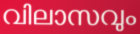
വിലാസവും